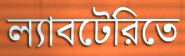
ল্যাবটেরিতে